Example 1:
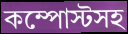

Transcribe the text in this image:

কম্পোস্টসহ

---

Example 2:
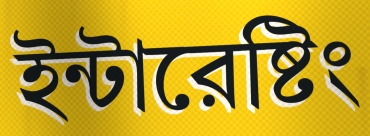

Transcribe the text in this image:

ইন্টারেষ্টিং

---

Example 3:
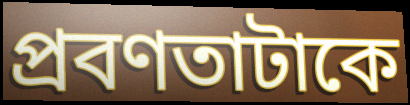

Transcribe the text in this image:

প্রবণতাটাকে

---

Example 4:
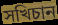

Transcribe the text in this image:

সখিচান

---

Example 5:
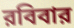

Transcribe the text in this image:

রবিবার